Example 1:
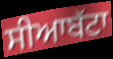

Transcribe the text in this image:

ਸੀਆਬੱਟਾ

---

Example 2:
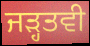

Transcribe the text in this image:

ਜੜ੍ਹਤਵੀ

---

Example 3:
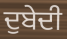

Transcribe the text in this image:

ਦੁਬੇਦੀ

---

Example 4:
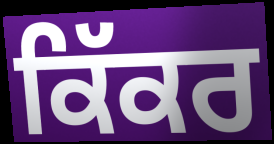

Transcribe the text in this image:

ਕਿੱਕਰ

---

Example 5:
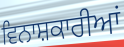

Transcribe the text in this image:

ਵਿਨਾਸ਼ਕਾਰੀਆਂ